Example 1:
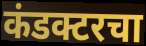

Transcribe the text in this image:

कंडक्टरचा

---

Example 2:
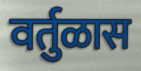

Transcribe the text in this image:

वर्तुळास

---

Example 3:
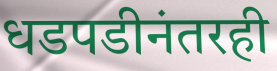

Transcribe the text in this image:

धडपडीनंतरही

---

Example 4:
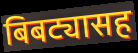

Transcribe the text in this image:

बिबट्यासह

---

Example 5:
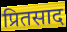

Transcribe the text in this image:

प्रितसाद